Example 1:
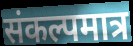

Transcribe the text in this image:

संकल्पमात्र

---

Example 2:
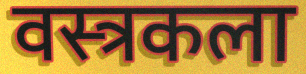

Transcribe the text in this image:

वस्त्रकला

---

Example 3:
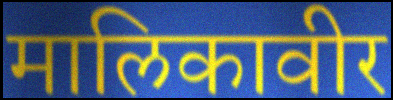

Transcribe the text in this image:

मालिकावीर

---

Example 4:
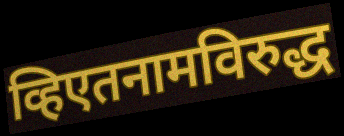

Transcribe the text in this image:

व्हिएतनामविरुद्ध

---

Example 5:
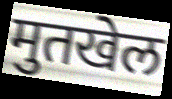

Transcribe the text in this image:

मुतखेल